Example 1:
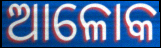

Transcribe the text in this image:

ଆଳୋକ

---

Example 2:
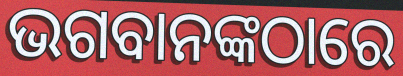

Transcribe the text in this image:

ଭଗବାନଙ୍କଠାରେ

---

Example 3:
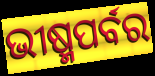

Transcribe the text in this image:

ଭୀଷ୍ମପର୍ବର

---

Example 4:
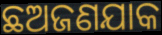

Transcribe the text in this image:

ଛଅଜଣଯାକ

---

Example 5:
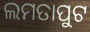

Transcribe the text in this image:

ଲମତାପୁଟ